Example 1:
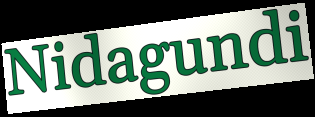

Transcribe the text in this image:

Nidagundi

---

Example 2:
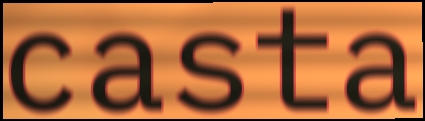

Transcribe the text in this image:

casta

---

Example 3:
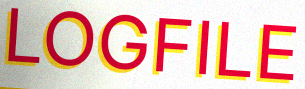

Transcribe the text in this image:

LOGFILE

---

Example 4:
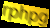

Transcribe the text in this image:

rphpg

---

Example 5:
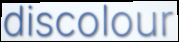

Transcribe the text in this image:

discolour